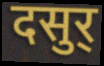
दसुर्